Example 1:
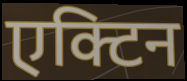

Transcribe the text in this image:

एक्टिन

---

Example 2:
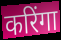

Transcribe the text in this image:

करिंगा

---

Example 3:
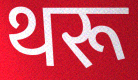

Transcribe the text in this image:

थरू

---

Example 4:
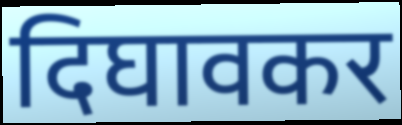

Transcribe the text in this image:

दिघावकर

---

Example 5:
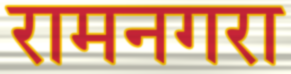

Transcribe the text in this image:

रामनगरा